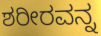
ಶರೀರವನ್ನ